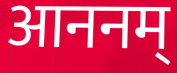
आननम्